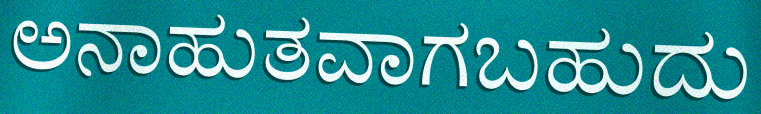
ಅನಾಹುತವಾಗಬಹುದು